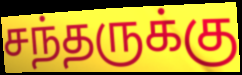
சந்தருக்கு